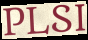
PLSI